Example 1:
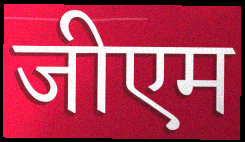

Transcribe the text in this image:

जीएम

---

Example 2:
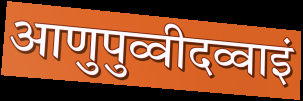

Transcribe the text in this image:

आणुपुव्वीदव्वाइं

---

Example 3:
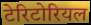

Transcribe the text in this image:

टेरिटोरियल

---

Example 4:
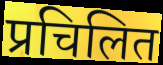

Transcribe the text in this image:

प्रचिलित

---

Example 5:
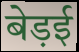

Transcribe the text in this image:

बेड़ई